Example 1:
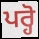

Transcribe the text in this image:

ਪਰ੍ਹੋ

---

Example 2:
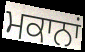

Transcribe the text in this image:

ਮਕਾਨਾਂ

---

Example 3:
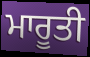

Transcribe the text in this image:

ਮਾਰੂਤੀ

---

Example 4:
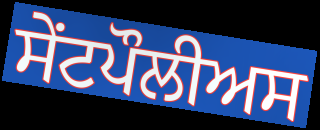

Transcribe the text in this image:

ਸੇਂਟਪੌਲੀਅਸ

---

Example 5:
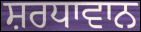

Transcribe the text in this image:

ਸ਼ਰਧਾਵਾਨ